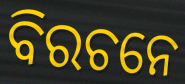
ବିରଚନେ